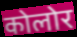
कोलोर